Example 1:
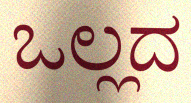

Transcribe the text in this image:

ಒಲ್ಲದ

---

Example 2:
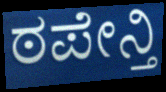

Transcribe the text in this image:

ಠಪೇನ್ತಿ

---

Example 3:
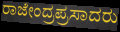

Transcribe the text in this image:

ರಾಜೇಂದ್ರಪ್ರಸಾದರು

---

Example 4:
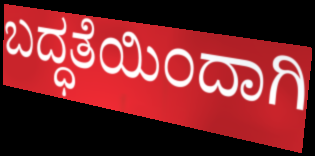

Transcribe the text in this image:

ಬದ್ಧತೆಯಿಂದಾಗಿ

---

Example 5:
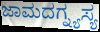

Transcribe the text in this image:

ಜಾಮದಗ್ನ್ಯಸ್ಯ